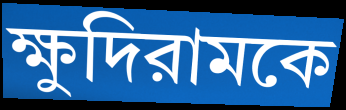
ক্ষুদিরামকে